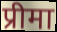
प्रीमा